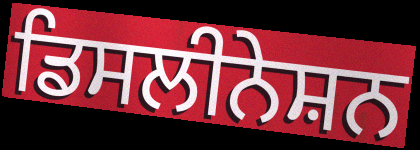
ਡਿਸਲੀਨੇਸ਼ਨ